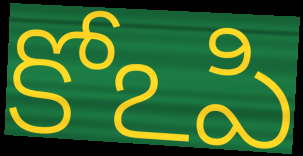
కోఽపి